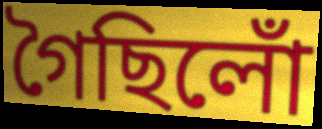
গৈছিলোঁ